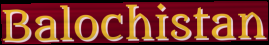
Balochistan